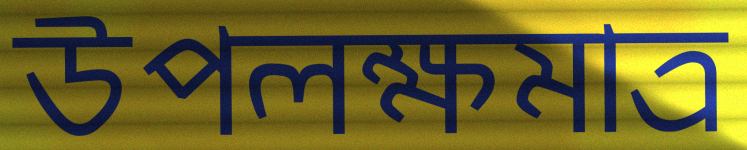
উপলক্ষমাত্র